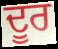
ਦੂਰ